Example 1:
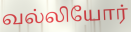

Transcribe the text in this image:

வல்லியோர்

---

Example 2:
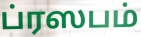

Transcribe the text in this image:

ப்ரஸபம்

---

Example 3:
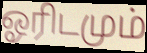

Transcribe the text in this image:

ஓரிடமும்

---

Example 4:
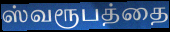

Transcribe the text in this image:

ஸ்வரூபத்தை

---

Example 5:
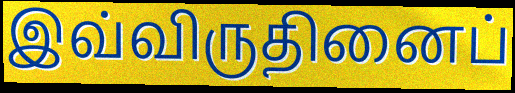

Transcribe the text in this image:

இவ்விருதினைப்